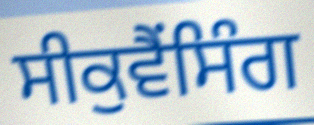
ਸੀਕੁਵੈਂਸਿੰਗ